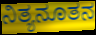
ನಿತ್ಯನೂತನ